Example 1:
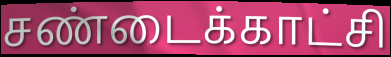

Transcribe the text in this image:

சண்டைக்காட்சி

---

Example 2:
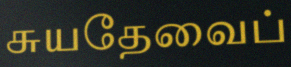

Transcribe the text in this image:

சுயதேவைப்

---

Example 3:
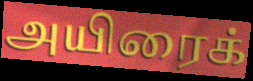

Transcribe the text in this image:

அயிரைக்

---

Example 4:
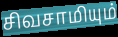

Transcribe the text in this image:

சிவசாமியும்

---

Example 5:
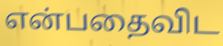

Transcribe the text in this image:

என்பதைவிட